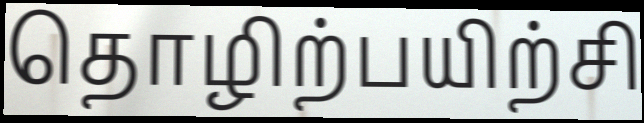
தொழிற்பயிற்சி